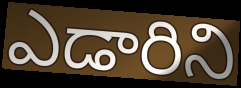
ఎడారిని